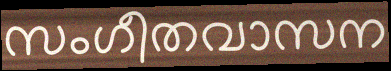
സംഗീതവാസന